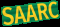
SAARC